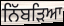
ਨਿੱਬੜਿਆ